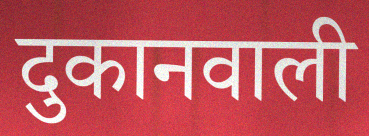
दुकानवाली